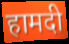
हामदी